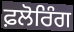
ਫ਼ਲੋਰਿੰਗ